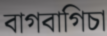
বাগবাগিচা